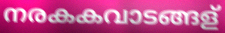
നരകകവാടങ്ങള്